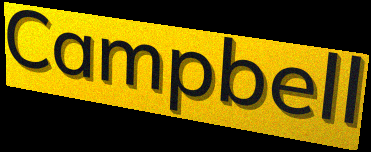
Campbell